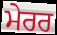
ਮੇਰਰ